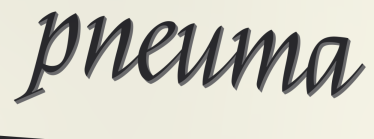
pneuma